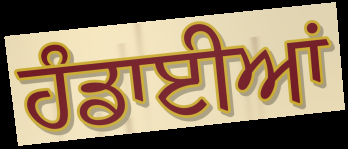
ਹੰਡਾਈਆਂ